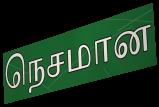
நெசமான